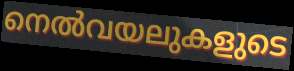
നെൽവയലുകളുടെ